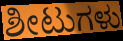
ಶೀಟುಗಳು